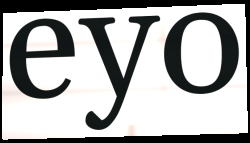
eyo